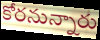
కోరనున్నారు